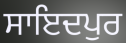
ਸਾਇਦਪੁਰ